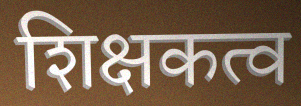
शिक्षकत्व